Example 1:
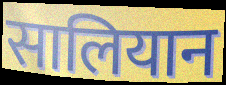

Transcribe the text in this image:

सालियान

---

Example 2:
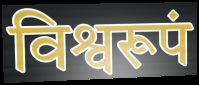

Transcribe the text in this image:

विश्वरूपं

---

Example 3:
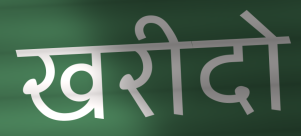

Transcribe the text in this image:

खरीदो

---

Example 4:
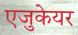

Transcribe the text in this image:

एजुकेयर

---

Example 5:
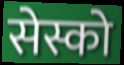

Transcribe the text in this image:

सेस्को